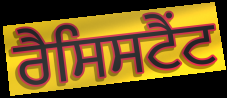
ਰੈਸਿਸਟੈਂਟ